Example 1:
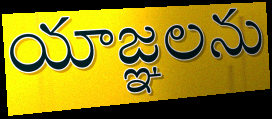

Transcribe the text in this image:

యాజ్ఞలను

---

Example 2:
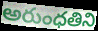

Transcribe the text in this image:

అరుంధతిని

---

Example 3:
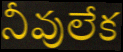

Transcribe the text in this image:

నీవులేక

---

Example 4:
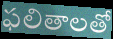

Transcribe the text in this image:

ఫలితాలతో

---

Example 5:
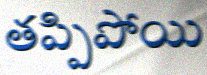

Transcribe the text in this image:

తప్పిపోయి